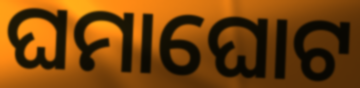
ଘମାଘୋଟ